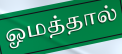
ஓமத்தால்